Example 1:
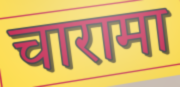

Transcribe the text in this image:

चारामा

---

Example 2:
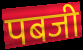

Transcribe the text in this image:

पबजी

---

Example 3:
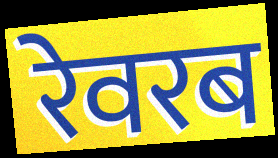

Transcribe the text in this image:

रेवरब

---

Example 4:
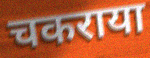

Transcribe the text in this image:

चकराया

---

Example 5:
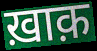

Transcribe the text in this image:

ख़ाक़